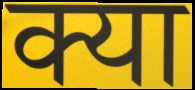
क्या